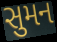
સુમન